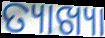
ତ୍ୟାଖ୍ୟା